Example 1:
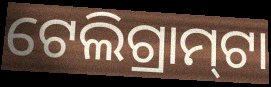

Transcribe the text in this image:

ଟେଲିଗ୍ରାମ୍‍ଟା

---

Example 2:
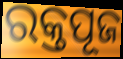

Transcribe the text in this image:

ରକ୍ତପୂଜ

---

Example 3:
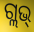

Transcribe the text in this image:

ଗ୍ଲଭ୍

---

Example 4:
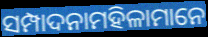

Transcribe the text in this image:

ସମ୍ପାଦନାମହିଳାମାନେ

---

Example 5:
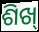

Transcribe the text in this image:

ଶିଖ୍